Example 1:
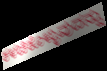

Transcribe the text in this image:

ಕಳಚಿಕೊಳ್ಳುವುದನ್ನು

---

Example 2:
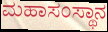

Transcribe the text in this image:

ಮಹಾಸಂಸ್ಥಾನ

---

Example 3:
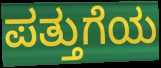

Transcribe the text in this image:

ಪತ್ತುಗೆಯ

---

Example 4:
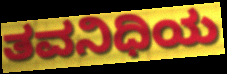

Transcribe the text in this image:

ತವನಿಧಿಯ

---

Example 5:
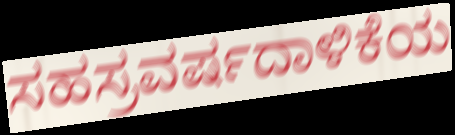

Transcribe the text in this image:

ಸಹಸ್ರವರ್ಷದಾಳಿಕೆಯ